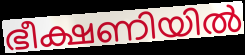
ഭീക്ഷണിയിൽ